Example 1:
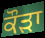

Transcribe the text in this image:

ਕੌਡ਼ਾ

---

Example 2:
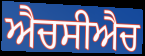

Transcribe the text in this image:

ਐਚਸੀਐਚ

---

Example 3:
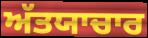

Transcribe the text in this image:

ਅੱਤਯਾਚਾਰ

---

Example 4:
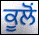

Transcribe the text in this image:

ਕੂਲੋਂ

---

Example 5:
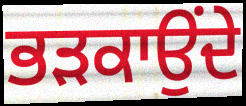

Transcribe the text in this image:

ਭੜਕਾਉਂਦੇ